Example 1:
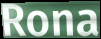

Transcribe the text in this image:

Rona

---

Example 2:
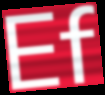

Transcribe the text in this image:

Ef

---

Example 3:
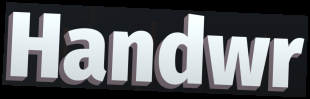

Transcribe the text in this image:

Handwr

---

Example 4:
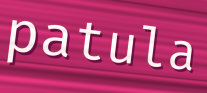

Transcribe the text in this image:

patula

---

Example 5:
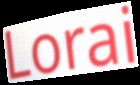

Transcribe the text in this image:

Lorai